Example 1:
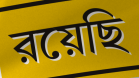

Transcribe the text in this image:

রয়েছি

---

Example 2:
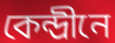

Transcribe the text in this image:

কেন্দ্রীনে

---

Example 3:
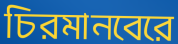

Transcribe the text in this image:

চিরমানবেরে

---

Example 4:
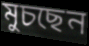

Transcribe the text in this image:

মুচছেন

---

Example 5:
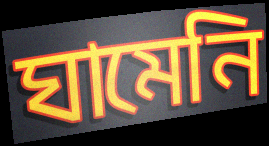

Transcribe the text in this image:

ঘামেনি